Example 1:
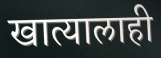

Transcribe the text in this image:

खात्यालाही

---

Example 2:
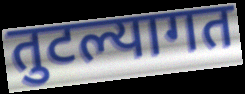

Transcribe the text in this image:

तुटल्यागत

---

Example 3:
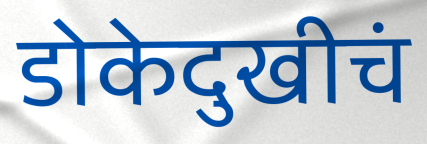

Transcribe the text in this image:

डोकेदुखीचं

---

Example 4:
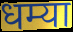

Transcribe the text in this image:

धम्या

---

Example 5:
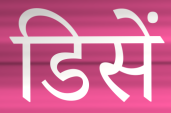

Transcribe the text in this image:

डिसें